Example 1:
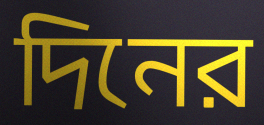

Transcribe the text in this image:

দিনের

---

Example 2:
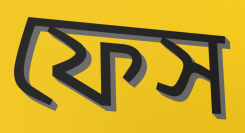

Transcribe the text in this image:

ফেস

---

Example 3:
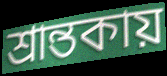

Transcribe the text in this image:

শ্রান্তকায়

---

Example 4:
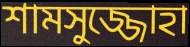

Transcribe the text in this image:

শামসুজ্জোহা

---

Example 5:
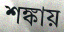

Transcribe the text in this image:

শঙ্কায়